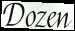
Dozen